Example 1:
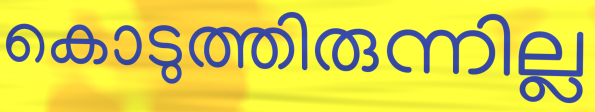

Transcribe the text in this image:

കൊടുത്തിരുന്നില്ല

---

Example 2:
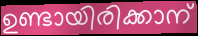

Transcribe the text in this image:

ഉണ്ടായിരിക്കാന്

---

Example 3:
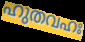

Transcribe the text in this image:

ഹുതവഹഃ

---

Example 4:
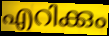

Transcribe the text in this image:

എറിക്കും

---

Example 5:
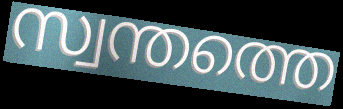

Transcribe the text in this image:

സ്വന്തത്തെ